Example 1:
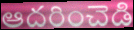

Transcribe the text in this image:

ఆదరించెడి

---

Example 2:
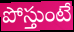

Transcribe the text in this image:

పోస్తుంటే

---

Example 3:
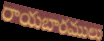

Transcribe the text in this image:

రాయబారములు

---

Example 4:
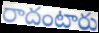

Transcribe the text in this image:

రాదంటారు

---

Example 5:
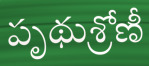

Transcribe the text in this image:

పృథుశ్రోణీ